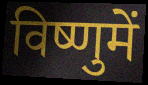
विष्णुमें